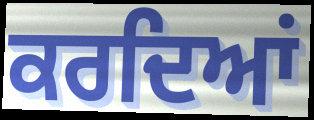
ਕਰਦਿਆਂ